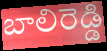
బాలిరెడ్డి